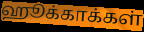
ஹூக்காக்கள்